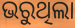
ଭରୁଥିଲା